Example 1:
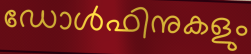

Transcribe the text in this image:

ഡോൾഫിനുകളും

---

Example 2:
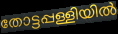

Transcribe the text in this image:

തോട്ടപ്പള്ളിയിൽ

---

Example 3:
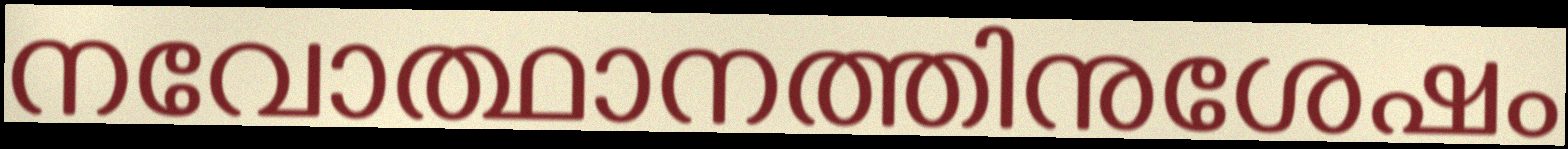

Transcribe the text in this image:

നവോത്ഥാനത്തിനുശേഷം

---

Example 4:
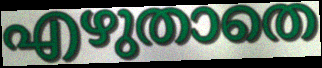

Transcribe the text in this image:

എഴുതാതെ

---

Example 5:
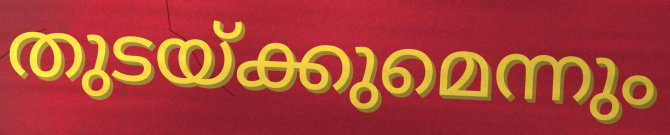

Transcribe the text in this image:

തുടയ്ക്കുമെന്നും